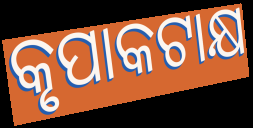
କୃପାକଟାକ୍ଷ